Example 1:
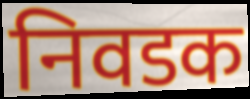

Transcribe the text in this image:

निवडक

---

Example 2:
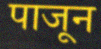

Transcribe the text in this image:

पाजून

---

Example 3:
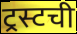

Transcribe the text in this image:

ट्रस्टची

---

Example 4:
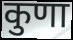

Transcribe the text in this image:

कुणा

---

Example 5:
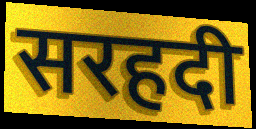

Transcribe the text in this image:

सरहदी